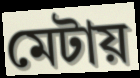
মেটায়